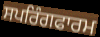
ਸਪਰਿੰਗਫਾਰਮ